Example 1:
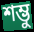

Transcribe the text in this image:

শম্ভু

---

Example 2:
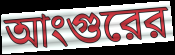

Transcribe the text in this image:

আংগুরের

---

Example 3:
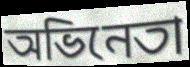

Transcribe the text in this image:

অভিনেতা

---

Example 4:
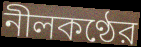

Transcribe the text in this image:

নীলকণ্ঠের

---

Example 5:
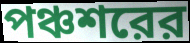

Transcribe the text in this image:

পঞ্চশরের